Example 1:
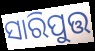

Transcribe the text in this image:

ସାରିପୁତ୍ତ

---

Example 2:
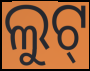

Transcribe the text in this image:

ଲୁଟ୍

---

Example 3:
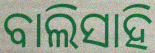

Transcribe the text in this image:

ବାଲିସାହି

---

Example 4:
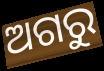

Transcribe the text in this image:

ଅଗରୁ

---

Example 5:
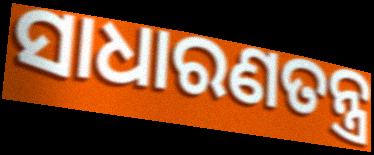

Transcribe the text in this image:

ସାଧାରଣତନ୍ତ୍ର